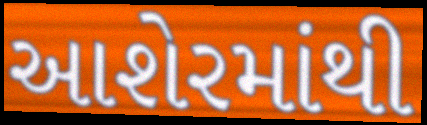
આશેરમાંથી